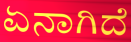
ಏನಾಗಿದೆ